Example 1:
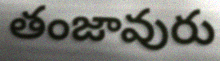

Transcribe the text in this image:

తంజావురు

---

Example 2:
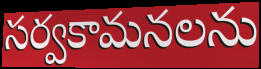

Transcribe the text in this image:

సర్వకామనలను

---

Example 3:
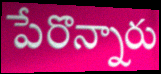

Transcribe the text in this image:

పేరొన్నారు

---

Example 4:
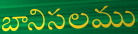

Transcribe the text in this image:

బానిసలము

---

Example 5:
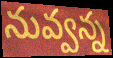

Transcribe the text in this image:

నువ్వన్న